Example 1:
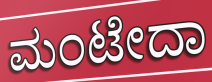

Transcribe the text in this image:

ಮಂಟೇದಾ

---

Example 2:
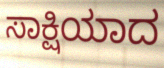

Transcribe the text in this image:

ಸಾಕ್ಷಿಯಾದ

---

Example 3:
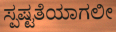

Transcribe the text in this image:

ಸ್ಪಷ್ಟತೆಯಾಗಲೀ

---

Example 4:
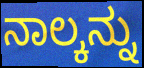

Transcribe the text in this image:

ನಾಲ್ಕನ್ನು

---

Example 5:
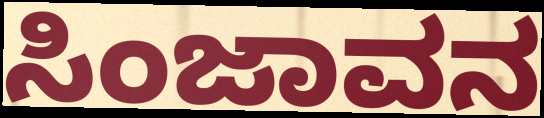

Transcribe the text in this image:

ಸಿಂಜಾವನ